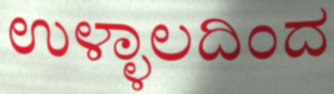
ಉಳ್ಳಾಲದಿಂದ